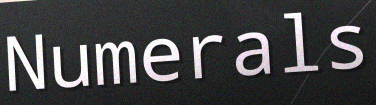
Numerals